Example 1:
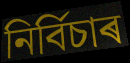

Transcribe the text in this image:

নিৰ্বিচাৰ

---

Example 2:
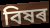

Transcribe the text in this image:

বিষৰ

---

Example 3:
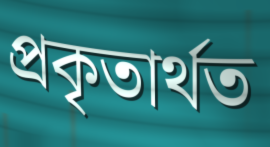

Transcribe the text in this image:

প্ৰকৃতাৰ্থত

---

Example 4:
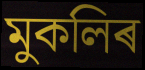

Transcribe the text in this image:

মুকলিৰ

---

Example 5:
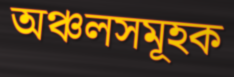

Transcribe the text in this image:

অঞ্চলসমূহক